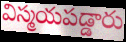
విస్మయపడ్డారు